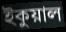
ইকুয়াল